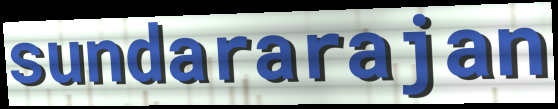
sundararajan